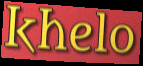
khelo